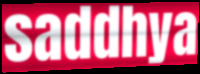
saddhya